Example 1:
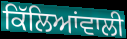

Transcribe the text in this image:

ਕਿੱਲਿਆਂਵਾਲੀ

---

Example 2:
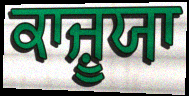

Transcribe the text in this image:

ਕਾਜ਼ੂਯਾ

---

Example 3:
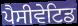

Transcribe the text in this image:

ਪੈਸੀਵੇਟਿਡ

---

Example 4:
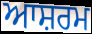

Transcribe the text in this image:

ਆਸ਼ਰਮ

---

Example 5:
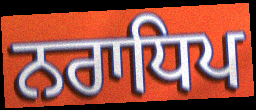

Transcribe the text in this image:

ਨਰਾਧਿਪ